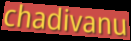
chadivanu